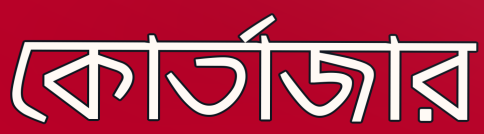
কোর্তাজার